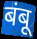
बंबू